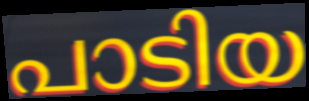
പാടിയ